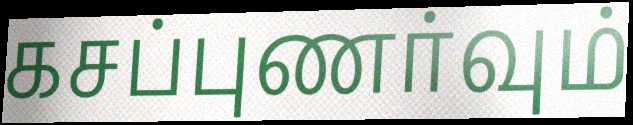
கசப்புணர்வும்